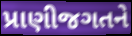
પ્રાણીજગતને